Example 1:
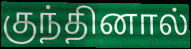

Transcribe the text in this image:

குந்தினால்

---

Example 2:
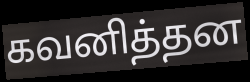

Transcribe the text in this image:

கவனித்தன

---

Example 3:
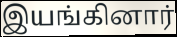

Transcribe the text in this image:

இயங்கினார்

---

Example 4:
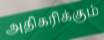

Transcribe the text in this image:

அதிகரிக்கும்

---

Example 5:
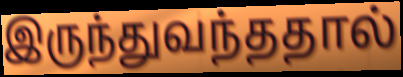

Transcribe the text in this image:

இருந்துவந்ததால்